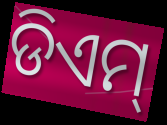
ଡିଏମ୍